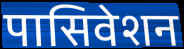
पासिवेशन